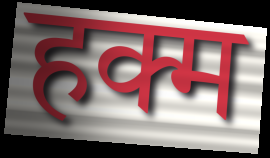
हक्म